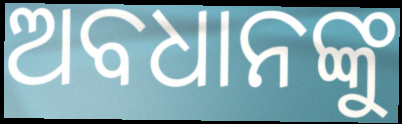
ଅବଧାନଙ୍କୁ